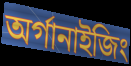
অর্গানাইজিং